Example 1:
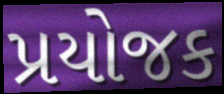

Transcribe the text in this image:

પ્રયોજક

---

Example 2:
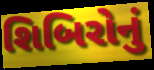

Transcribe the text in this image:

શિબિરોનું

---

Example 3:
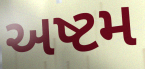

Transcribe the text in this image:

અષ્ટમ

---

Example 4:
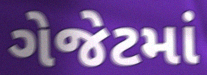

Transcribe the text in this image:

ગેજેટમાં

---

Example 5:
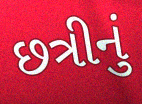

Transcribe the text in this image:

છત્રીનું